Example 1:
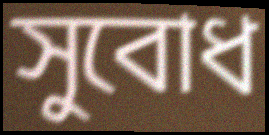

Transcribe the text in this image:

সুবোধ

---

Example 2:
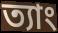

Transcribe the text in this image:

ত্যাং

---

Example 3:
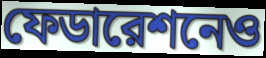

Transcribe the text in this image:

ফেডারেশনেও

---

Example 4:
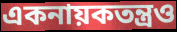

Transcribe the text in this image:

একনায়কতন্ত্রও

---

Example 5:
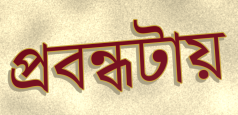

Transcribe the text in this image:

প্রবন্ধটায়